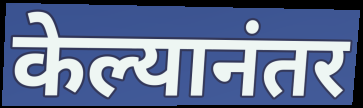
केल्यानंतर